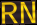
RN